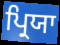
ਪ੍ਰਿਯਾ